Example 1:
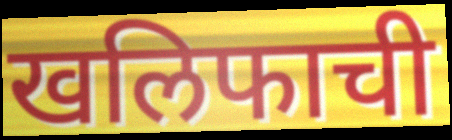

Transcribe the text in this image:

खलिफाची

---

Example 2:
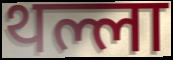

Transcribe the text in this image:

थल्ला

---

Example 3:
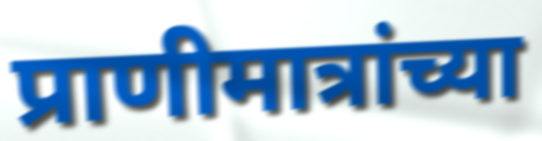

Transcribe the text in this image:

प्राणीमात्रांच्या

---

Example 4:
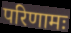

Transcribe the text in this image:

परिणामः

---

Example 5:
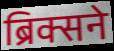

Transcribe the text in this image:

ब्रिक्सने